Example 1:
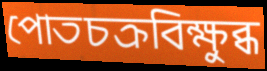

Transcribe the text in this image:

পোতচক্রবিক্ষুব্ধ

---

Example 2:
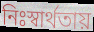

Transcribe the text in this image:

নিঃস্বার্থতায়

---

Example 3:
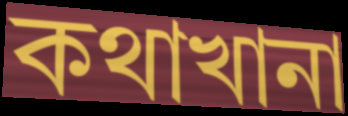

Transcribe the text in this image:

কথাখানা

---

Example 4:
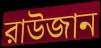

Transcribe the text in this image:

রাউজান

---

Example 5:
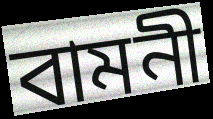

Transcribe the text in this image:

বামনী